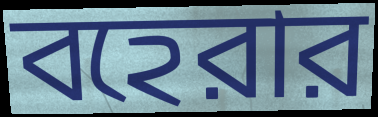
বহেরার